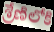
శ్రేణిలోకి